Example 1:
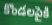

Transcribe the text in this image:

కొండలపైకి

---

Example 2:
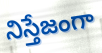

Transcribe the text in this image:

నిస్తేజంగా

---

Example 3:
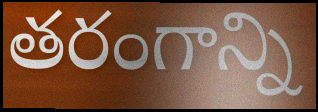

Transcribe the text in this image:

తరంగాన్ని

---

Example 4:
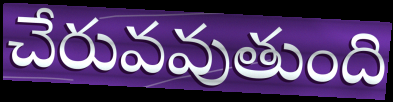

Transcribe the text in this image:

చేరువవుతుంది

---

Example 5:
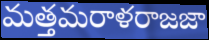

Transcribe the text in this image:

మత్తమరాళరాజజా